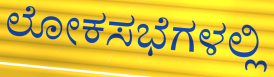
ಲೋಕಸಭೆಗಳಲ್ಲಿ